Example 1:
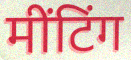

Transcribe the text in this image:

मींटिंग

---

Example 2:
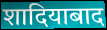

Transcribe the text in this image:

शादियाबाद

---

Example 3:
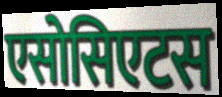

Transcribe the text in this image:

एसोसिएटस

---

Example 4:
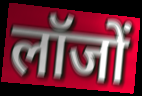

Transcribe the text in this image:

लॉजों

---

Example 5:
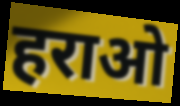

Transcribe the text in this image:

हराओ